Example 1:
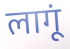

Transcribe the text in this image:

लागूं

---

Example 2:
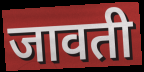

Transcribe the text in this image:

जावती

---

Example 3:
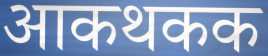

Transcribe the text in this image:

आकथकक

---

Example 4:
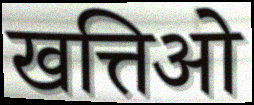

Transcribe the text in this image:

खत्तिओ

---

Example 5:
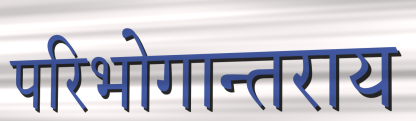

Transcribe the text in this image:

परिभोगान्तराय